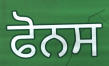
ਫੋਨਸ